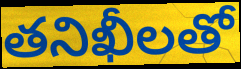
తనిఖీలతో